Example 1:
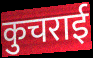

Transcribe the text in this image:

कुचराई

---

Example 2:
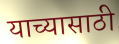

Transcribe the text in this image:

याच्यासाठी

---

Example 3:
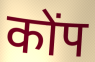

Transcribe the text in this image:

कोंप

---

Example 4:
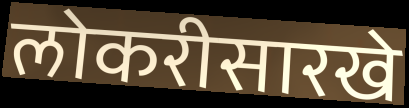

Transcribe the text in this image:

लोकरीसारखे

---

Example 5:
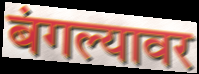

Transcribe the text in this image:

बंगल्यावर